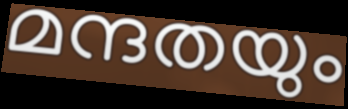
മന്ദതയും